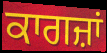
ਕਾਗਜ਼ਾਂ